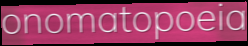
onomatopoeia